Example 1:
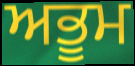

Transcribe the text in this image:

ਅਭੂਮ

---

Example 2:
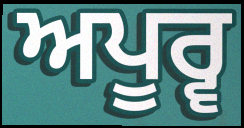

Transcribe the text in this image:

ਅਪੂਰ੍ਵ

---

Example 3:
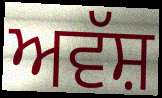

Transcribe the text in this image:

ਅਵੱਸ਼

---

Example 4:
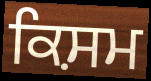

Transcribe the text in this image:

ਕ਼ਿਸਮ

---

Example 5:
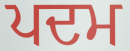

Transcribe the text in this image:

ਪਦਮ